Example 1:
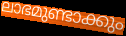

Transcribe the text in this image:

ലാഭമുണ്ടാക്കും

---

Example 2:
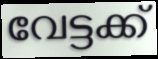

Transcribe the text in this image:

വേട്ടക്ക്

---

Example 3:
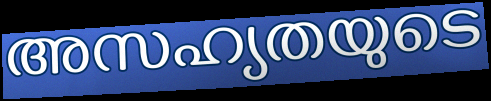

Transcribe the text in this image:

അസഹ്യതയുടെ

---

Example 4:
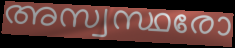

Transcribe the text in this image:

അസ്വസ്ഥരോ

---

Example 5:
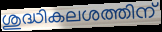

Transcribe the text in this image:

ശുദ്ധികലശത്തിന്